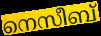
നെസീബ്